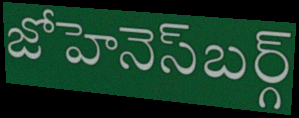
జోహెనెస్‍బర్గ్